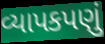
વ્યાપકપણું